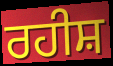
ਰਹੀਸ਼